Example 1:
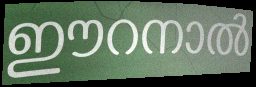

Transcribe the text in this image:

ഈറനാൽ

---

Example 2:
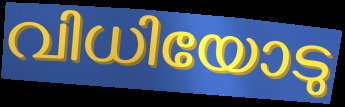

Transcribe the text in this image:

വിധിയോടു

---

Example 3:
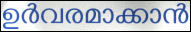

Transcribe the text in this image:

ഉർവരമാക്കാൻ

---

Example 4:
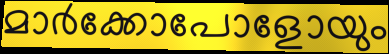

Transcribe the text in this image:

മാർക്കോപോളോയും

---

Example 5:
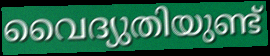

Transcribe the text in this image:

വൈദ്യുതിയുണ്ട്